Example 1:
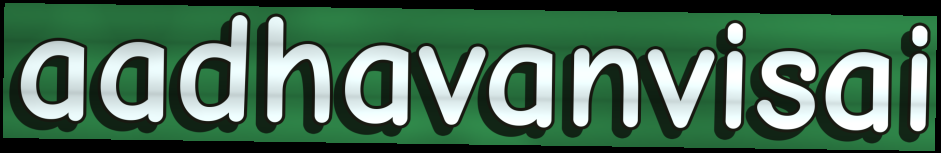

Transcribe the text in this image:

aadhavanvisai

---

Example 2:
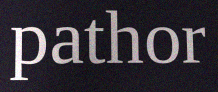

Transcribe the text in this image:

pathor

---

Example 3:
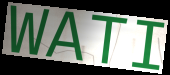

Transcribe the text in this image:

WATI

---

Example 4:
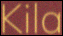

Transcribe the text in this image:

Kila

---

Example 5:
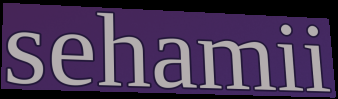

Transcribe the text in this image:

sehamii